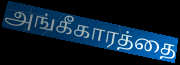
அங்கீகாரத்தை